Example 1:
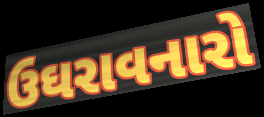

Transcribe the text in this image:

ઉઘરાવનારો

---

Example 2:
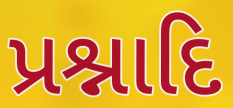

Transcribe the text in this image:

પ્રશ્નાદિ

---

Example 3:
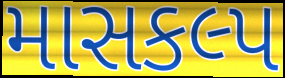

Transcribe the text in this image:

માસકલ્પ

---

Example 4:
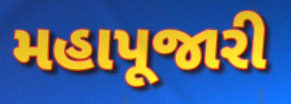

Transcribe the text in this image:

મહાપૂજારી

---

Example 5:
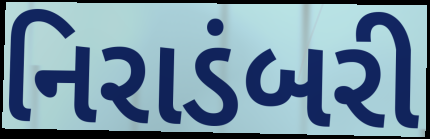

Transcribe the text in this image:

નિરાડંબરી